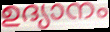
ഉദ്യാനം